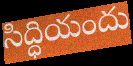
సిద్ధియందు